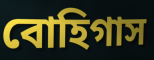
বোহিগাস